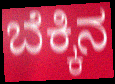
ಬೆಕ್ಕಿನ